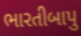
ભારતીબાપુ